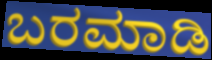
ಬರಮಾಡಿ